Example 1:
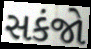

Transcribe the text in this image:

સકંજો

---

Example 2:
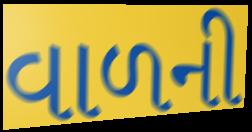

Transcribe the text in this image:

વાળની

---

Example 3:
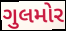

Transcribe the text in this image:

ગુલમોર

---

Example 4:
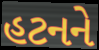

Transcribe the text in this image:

હટનને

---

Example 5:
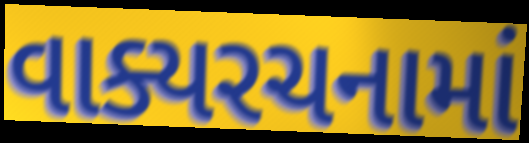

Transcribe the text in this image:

વાક્યરચનામાં